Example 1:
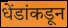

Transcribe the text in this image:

धेंडांकडून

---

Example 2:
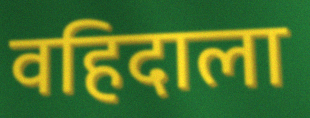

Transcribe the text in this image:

वहिदाला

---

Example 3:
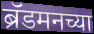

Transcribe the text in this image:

ब्रॅडमनच्या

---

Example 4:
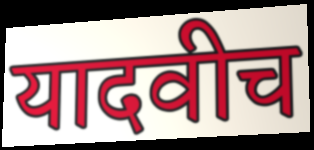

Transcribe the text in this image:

यादवीच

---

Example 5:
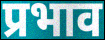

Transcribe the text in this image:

प्रभाव